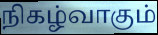
நிகழ்வாகும்